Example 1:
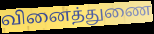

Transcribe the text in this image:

வினைத்துணை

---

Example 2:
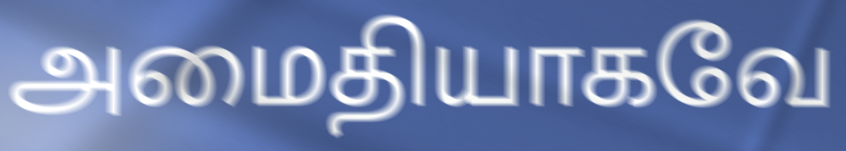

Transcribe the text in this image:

அமைதியாகவே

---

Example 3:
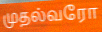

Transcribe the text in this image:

முதல்வரோ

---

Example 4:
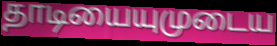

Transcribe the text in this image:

தாடியையுமுடைய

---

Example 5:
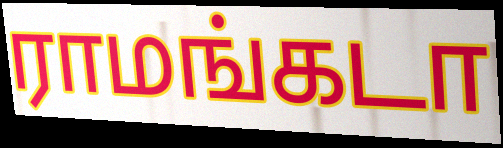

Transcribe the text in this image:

ராமங்கடா